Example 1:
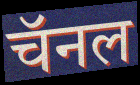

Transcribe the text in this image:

चॅनल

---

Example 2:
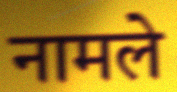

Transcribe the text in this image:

नामले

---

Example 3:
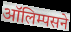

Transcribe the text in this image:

ऑलिम्पसने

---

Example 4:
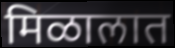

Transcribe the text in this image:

मिळालात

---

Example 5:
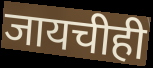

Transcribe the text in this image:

जायचीही